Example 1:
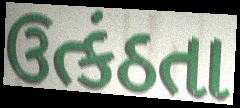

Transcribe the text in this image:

ઉત્કંઠતા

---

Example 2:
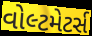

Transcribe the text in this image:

વોલ્ટમેટર્સ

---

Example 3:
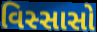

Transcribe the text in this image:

વિસ્સાસો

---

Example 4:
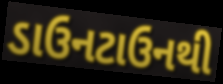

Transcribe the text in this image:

ડાઉનટાઉનથી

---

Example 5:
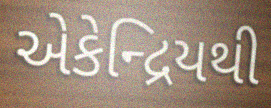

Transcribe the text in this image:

એકેન્દ્રિયથી